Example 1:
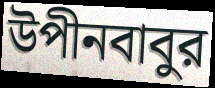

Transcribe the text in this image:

উপীনবাবুর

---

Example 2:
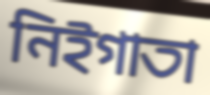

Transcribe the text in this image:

নিইগাতা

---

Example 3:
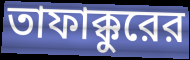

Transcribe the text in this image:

তাফাক্কুরের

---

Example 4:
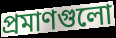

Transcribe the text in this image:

প্রমাণগুলো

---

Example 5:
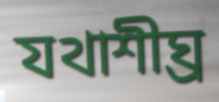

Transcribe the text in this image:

যথাশীঘ্র